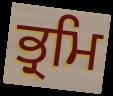
ਭ੍ਰਮਿ